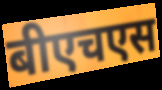
बीएचएस